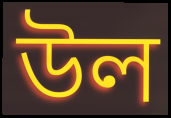
উল